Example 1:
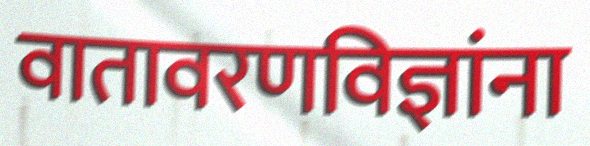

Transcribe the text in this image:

वातावरणविज्ञांना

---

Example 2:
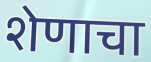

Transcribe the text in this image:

शेणाचा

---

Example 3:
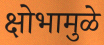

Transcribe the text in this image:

क्षोभामुळे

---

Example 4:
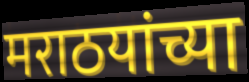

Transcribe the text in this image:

मराठयांच्या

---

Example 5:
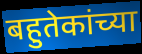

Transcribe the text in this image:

बहुतेकांच्या